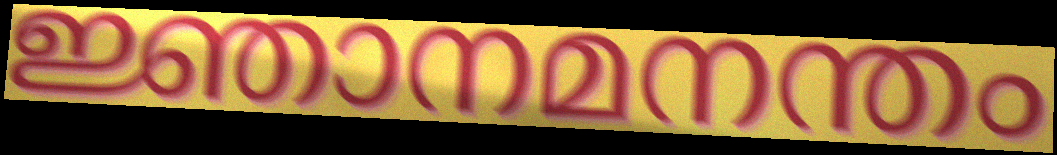
ജ്ഞാനമനന്തം